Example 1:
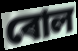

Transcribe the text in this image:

ৰোল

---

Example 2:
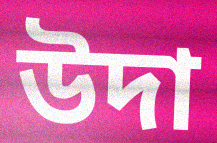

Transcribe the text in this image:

উদা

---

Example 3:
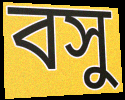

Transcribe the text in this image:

বসু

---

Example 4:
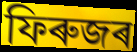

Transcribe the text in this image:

ফিৰুজৰ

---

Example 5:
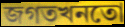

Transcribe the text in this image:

জগতখনতো